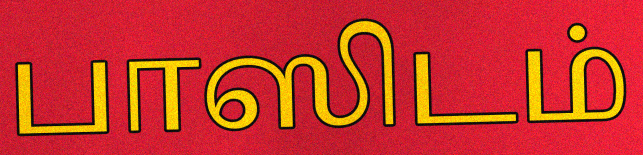
பாஸிடம்